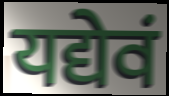
यद्येवं